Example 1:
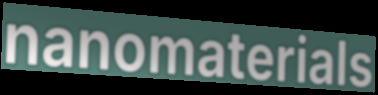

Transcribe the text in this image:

nanomaterials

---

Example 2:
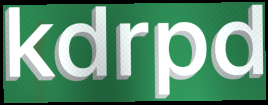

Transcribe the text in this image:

kdrpd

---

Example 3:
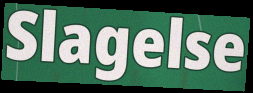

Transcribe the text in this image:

Slagelse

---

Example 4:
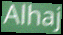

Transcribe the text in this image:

Alhaj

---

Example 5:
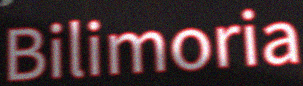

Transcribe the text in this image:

Bilimoria